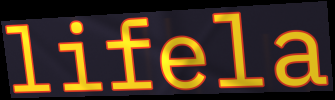
lifela